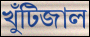
খুঁটিজাল